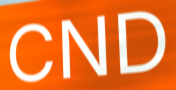
CND